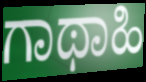
ಗಾಥಾಹಿ